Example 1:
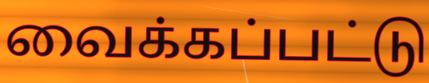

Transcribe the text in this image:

வைக்கப்பட்டு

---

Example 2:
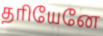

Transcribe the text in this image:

தரியேனே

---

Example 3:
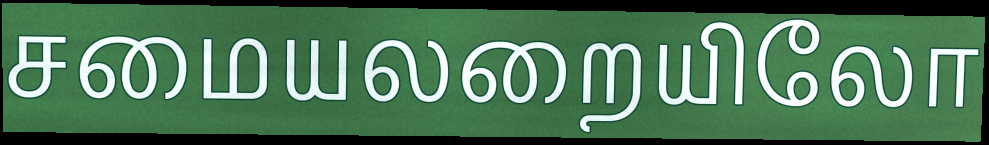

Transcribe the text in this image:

சமையலறையிலோ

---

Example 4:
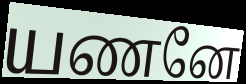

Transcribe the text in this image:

யணனே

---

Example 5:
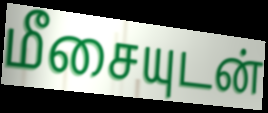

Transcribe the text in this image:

மீசையுடன்